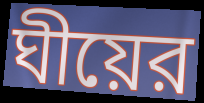
ঘীয়ের